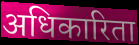
अधिकारिता